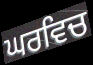
ਘਰਵਿਚ